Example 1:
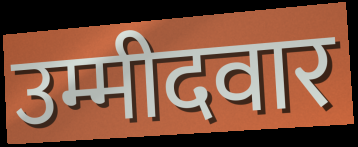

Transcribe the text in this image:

उम्‍मीदवार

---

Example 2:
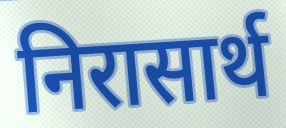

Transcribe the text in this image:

निरासार्थ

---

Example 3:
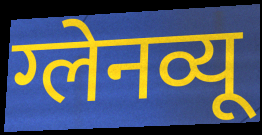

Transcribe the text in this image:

ग्लेनव्यू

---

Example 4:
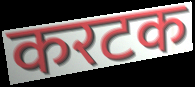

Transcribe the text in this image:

करटक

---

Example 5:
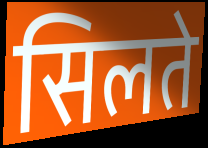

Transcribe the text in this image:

सिलते